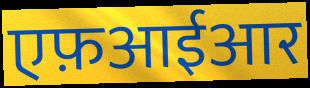
एफ़आईआर